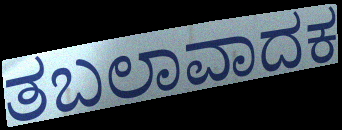
ತಬಲಾವಾದಕ